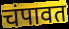
चंपावत